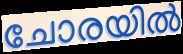
ചോരയിൽ